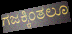
ಗಜಕ್ಕಿಂತಲೂ